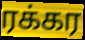
ரக்கர